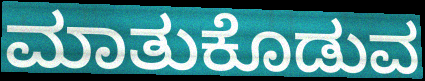
ಮಾತುಕೊಡುವ